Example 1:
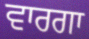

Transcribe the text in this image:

ਵਾਰਗਾ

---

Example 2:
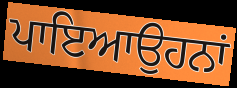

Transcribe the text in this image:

ਪਾਇਆਉਹਨਾਂ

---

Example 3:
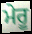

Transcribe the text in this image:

ਮੇਰੂ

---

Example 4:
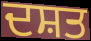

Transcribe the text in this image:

ਦਸ਼ਤ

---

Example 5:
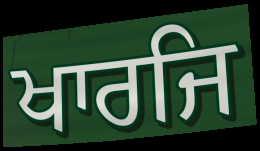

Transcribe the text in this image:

ਖਾਰਜਿ